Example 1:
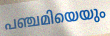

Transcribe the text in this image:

പഞ്ചമിയെയും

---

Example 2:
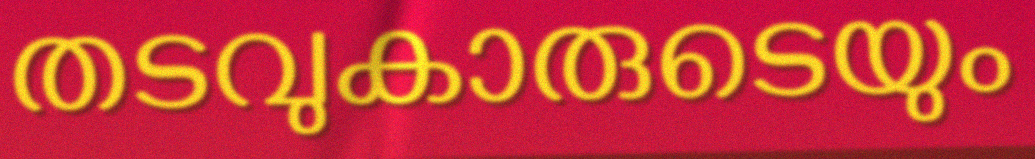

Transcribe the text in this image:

തടവുകാരുടെയും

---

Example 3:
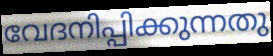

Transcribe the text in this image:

വേദനിപ്പിക്കുന്നതു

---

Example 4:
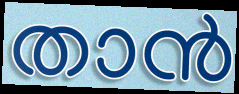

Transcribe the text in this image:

താൻ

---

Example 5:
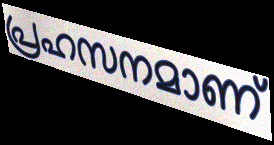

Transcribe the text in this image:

പ്രഹസനമാണ്